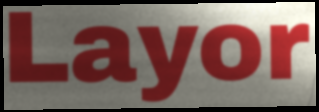
Layor